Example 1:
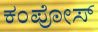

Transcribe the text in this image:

ಕಂಪೋಸ್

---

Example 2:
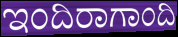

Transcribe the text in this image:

ಇಂದಿರಾಗಾಂದಿ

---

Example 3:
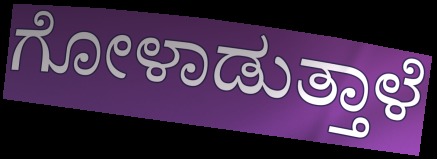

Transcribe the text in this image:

ಗೋಳಾಡುತ್ತಾಳೆ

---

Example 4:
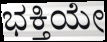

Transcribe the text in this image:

ಭಕ್ತಿಯೇ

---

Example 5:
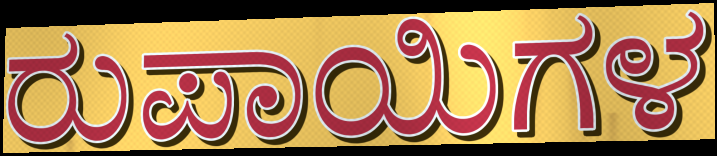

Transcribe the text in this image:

ರುಪಾಯಿಗಳ